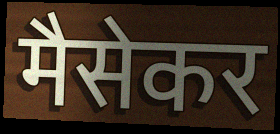
मैसेकर